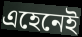
এহেনেই